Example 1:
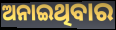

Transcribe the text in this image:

ଅନାଇଥିବାର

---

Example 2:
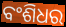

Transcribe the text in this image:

ବଂଶିଧର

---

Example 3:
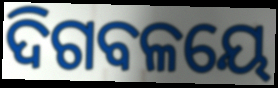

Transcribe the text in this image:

ଦିଗବଳୟେ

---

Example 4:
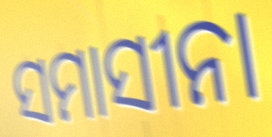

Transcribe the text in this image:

ସମାସୀନା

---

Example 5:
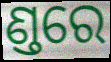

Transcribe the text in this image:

ଣ୍ଡରେ